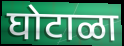
घोटाळा